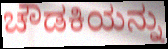
ಚೌಡಕಿಯನ್ನು